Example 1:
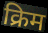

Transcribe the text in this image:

क्रिम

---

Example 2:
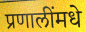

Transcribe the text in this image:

प्रणालींमधे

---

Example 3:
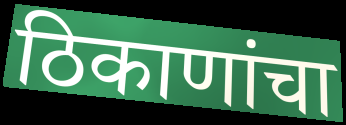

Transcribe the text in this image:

ठिकाणांचा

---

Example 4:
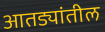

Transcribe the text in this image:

आतड्यांतील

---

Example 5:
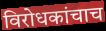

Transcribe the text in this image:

विरोधकांचाच